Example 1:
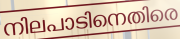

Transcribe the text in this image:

നിലപാടിനെതിരെ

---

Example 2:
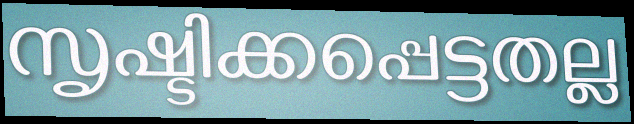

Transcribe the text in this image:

സൃഷ്ടിക്കപ്പെട്ടതല്ല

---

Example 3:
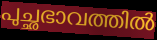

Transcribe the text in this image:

പുച്ഛഭാവത്തിൽ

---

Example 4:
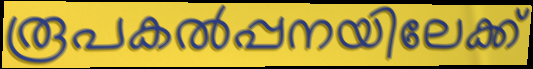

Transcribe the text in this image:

രൂപകൽപ്പനയിലേക്ക്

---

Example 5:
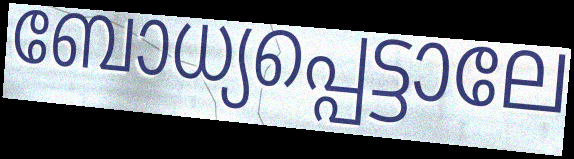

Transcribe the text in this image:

ബോധ്യപ്പെട്ടാലേ